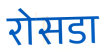
रोसडा